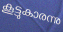
കൂട്ടുകാരന്നു